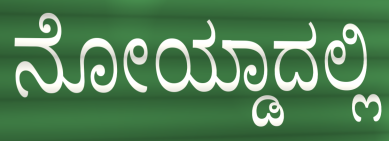
ನೋಯ್ಡಾದಲ್ಲಿ